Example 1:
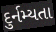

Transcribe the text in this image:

દુર્નમ્યતા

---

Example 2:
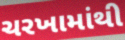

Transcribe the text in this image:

ચરખામાંથી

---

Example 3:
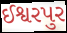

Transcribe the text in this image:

ઈશ્વરપુર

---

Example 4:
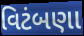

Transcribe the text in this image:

વિટંબણા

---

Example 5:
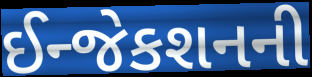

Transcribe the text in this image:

ઈન્જેકશનની